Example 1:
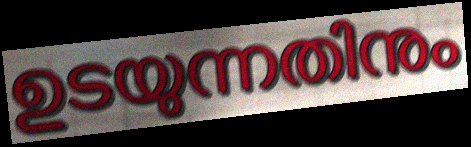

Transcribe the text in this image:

ഉടയുന്നതിനും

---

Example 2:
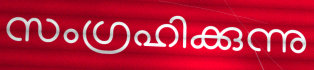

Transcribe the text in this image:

സംഗ്രഹിക്കുന്നു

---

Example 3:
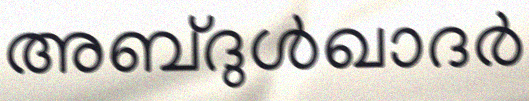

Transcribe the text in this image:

അബ്ദുൾഖാദർ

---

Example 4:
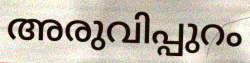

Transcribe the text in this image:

അരുവിപ്പുറം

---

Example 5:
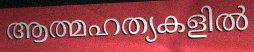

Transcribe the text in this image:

ആത്മഹത്യകളിൽ